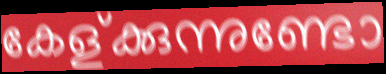
കേള്ക്കുന്നുണ്ടോ